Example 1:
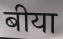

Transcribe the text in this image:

बीया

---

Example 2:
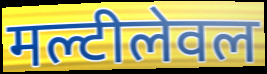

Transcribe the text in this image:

मल्टीलेवल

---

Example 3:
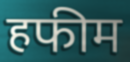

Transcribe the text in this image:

हफीम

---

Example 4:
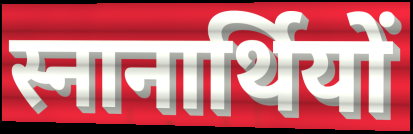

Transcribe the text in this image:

स्नानार्थियों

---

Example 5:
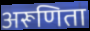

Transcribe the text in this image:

अरूणिता